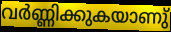
വർണ്ണിക്കുകയാണു്